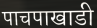
पाचपाखाडी